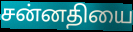
சன்னதியை